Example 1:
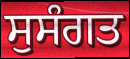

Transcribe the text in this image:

ਸੁਸੰਗਤ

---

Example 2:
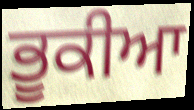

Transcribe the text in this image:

ਭੂਕੀਆ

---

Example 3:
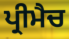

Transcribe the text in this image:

ਪ੍ਰੀਮੈਚ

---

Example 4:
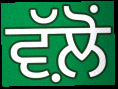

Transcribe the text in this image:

ਵੱਲ਼ੋਂ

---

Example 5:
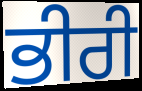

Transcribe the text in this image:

ਭੀਰੀ